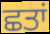
ਛਤਾਂ